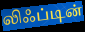
லிஃப்டின்